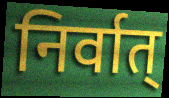
निर्वात्